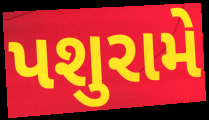
પશુરામે